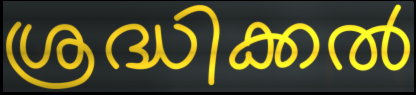
ശ്രദ്ധിക്കൽ